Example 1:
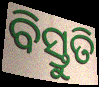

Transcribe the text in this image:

ବିସ୍ତୁତି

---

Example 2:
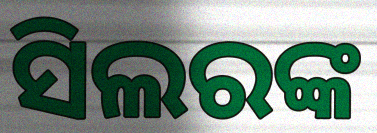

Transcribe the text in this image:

ସିଲରଙ୍କ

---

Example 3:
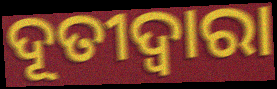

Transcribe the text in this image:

ଦୂତୀଦ୍ୱାରା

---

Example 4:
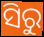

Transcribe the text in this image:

ସିରୁ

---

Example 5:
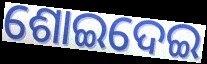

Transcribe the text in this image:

ଶୋଇଦେଇ